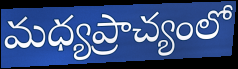
మధ్యప్రాచ్యంలో